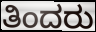
ತಿಂದರು